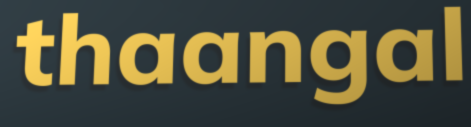
thaangal